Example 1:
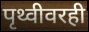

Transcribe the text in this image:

पृथ्वीवरही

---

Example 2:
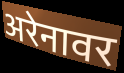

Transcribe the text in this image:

अरेनावर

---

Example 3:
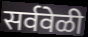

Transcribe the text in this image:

सर्ववेळी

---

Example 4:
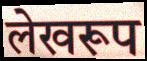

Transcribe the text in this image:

लेखरूप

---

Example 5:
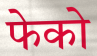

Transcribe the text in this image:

फेको